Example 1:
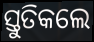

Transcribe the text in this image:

ସ୍ତୁତିକଲେ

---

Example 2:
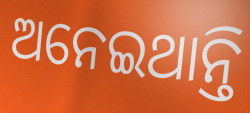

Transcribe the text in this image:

ଅନେଇଥାନ୍ତି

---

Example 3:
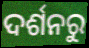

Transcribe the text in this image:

ଦର୍ଶନରୁ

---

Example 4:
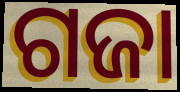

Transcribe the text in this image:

ଗଜା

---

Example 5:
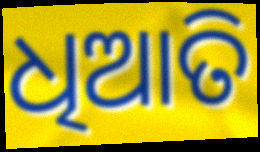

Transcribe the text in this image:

ଧିଆତି